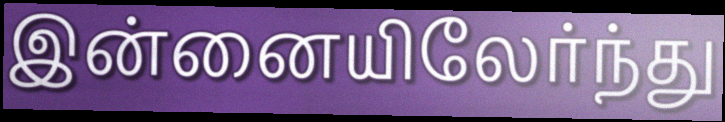
இன்னையிலேர்ந்து